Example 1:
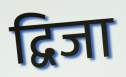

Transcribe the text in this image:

द्विजा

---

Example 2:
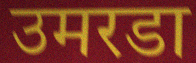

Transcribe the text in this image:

उमरडा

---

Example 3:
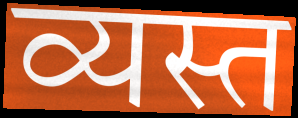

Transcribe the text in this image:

व्यस्त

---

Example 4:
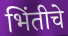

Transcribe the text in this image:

भिंतीचे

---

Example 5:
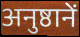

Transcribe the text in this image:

अनुष्ठानें